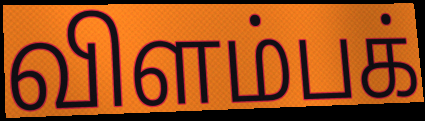
விளம்பக்